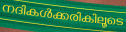
നദികൾക്കരികിലൂടെ